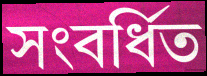
সংবর্ধিত